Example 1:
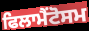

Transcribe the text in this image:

ਫਿਲਾਮੈਂਟੋਸਮ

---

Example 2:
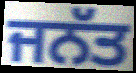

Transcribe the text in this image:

ਜਨੱਤ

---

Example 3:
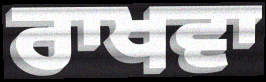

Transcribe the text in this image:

ਰਾਖਵਾ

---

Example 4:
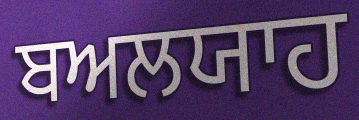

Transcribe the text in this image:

ਬਅਲਯਾਹ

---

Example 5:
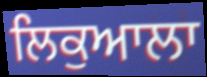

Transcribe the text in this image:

ਲਿਕੁਆਲਾ